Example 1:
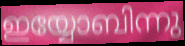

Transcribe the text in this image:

ഇയ്യോബിന്നു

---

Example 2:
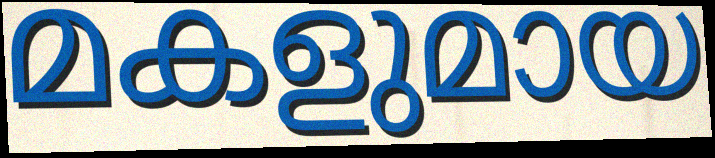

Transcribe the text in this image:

മകളുമായ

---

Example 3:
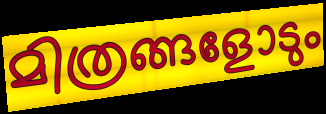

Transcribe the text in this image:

മിത്രങ്ങളോടും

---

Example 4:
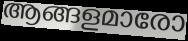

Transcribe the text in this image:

ആങ്ങളമാരോ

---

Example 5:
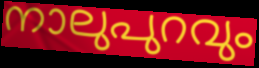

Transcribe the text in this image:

നാലുപുറവും